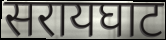
सरायघाट